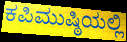
ಕಪಿಮುಷ್ಠಿಯಲ್ಲಿ